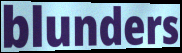
blunders